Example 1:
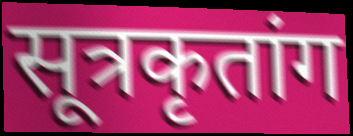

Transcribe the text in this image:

सूत्रकृतांग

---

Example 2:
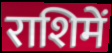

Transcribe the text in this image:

राशिमें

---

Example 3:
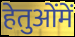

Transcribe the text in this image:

हेतुओंमें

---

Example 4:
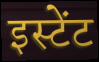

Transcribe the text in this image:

इस्टेंट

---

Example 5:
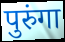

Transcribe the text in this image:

पुरुंगा